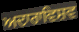
ਅਦਾਰਾਵਿਸ਼ਵ